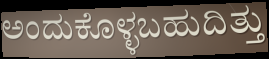
ಅಂದುಕೊಳ್ಳಬಹುದಿತ್ತು